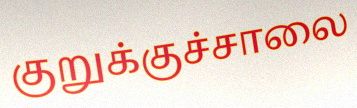
குறுக்குச்சாலை